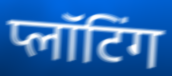
प्लॉटिंग